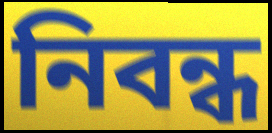
নিবন্ধ